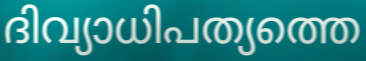
ദിവ്യാധിപത്യത്തെ